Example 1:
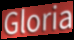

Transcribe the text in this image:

Gloria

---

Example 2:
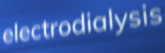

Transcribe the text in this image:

electrodialysis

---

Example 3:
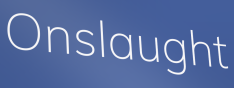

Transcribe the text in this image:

Onslaught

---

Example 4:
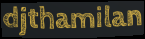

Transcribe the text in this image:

djthamilan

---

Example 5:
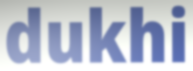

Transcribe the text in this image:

dukhi